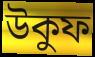
উকুফ